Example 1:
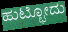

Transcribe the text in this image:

ಹುಟ್ಟೋದು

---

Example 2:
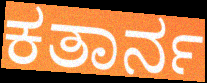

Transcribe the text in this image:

ಕತಾರ್ನ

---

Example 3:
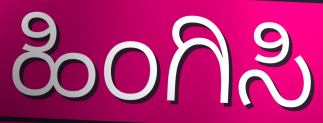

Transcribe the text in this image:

ಹಿಂಗಿಸಿ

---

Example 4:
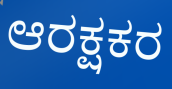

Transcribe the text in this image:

ಆರಕ್ಷಕರ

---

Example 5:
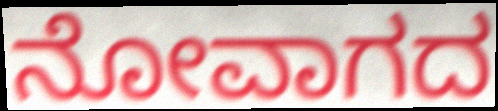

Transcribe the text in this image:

ನೋವಾಗದ